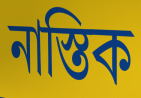
নাস্তিক